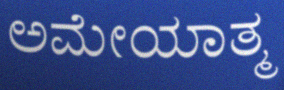
ಅಮೇಯಾತ್ಮ